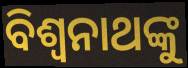
ବିଶ୍ବନାଥଙ୍କୁ